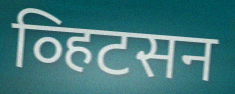
व्हिटसन